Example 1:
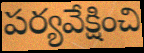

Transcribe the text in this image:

పర్యవేక్షించి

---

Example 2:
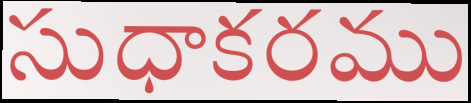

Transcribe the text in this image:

సుధాకరము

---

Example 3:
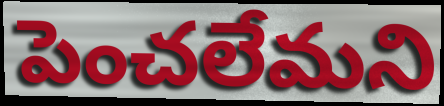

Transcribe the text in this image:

పెంచలేమని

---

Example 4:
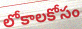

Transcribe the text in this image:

లోకాలకోసం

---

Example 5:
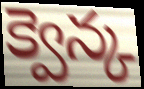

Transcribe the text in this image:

క్వెన్క